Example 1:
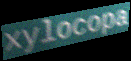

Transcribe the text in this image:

xylocopa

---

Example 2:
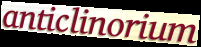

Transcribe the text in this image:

anticlinorium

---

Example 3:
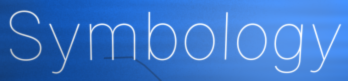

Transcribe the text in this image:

Symbology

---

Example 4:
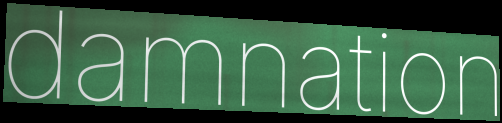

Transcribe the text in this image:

damnation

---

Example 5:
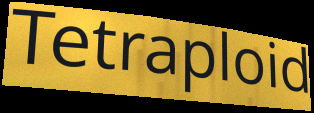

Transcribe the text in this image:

Tetraploid